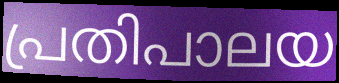
പ്രതിപാലയ